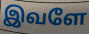
இவளே